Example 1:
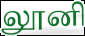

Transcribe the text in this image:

லூனி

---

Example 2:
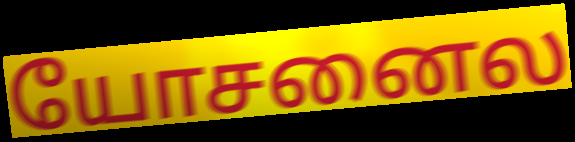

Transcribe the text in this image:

யோசனைல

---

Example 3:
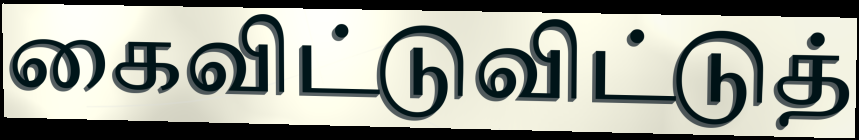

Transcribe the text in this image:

கைவிட்டுவிட்டுத்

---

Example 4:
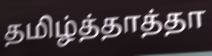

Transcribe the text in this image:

தமிழ்த்தாத்தா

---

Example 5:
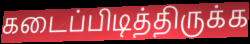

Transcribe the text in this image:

கடைப்பிடித்திருக்க